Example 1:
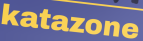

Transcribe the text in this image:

katazone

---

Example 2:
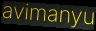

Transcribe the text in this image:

avimanyu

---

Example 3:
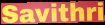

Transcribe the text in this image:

Savithri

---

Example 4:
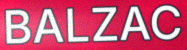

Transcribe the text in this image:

BALZAC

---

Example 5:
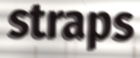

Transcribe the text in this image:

straps